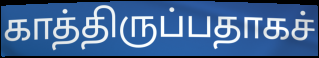
காத்திருப்பதாகச்